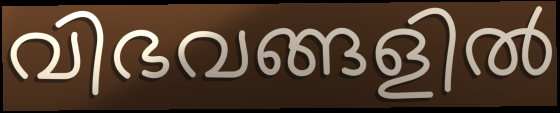
വിഭവങ്ങളിൽ